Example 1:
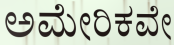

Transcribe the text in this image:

ಅಮೇರಿಕವೇ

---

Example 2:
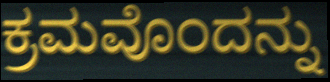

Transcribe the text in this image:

ಕ್ರಮವೊಂದನ್ನು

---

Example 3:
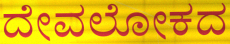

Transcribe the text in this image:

ದೇವಲೋಕದ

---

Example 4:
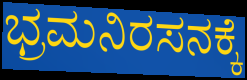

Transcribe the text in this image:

ಭ್ರಮನಿರಸನಕ್ಕೆ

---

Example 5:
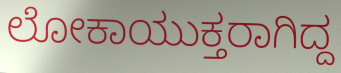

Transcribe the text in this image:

ಲೋಕಾಯುಕ್ತರಾಗಿದ್ದ